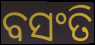
ବସଂତି